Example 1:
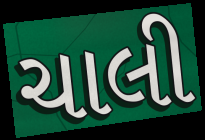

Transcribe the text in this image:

ચાલી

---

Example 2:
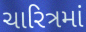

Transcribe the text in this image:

ચારિત્રમાં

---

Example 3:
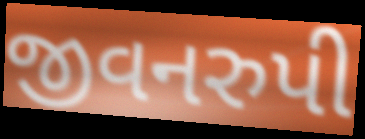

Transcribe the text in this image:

જીવનરુપી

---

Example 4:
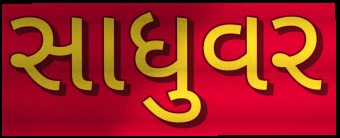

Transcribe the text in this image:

સાધુવર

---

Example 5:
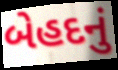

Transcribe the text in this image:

બેહદનું